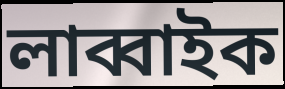
লাব্বাইক